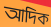
আদিক